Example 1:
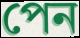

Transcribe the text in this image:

পেন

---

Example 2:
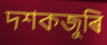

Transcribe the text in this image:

দশকজুৰি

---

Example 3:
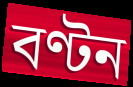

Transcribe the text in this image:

বণ্টন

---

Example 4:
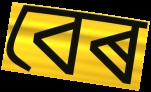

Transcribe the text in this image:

বেৰ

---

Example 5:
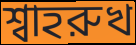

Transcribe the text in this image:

শ্বাহৰুখ